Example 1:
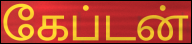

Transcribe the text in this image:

கேப்டன்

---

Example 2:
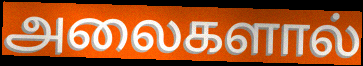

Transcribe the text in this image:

அலைகளால்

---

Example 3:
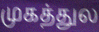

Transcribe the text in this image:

முகத்துல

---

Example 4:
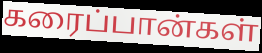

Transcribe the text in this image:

கரைப்பான்கள்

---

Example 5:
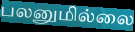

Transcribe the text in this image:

பலனுமில்லை